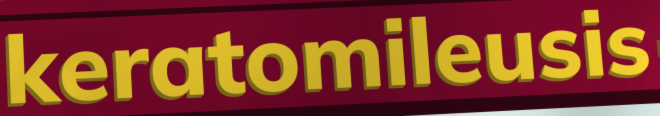
keratomileusis